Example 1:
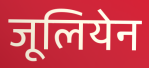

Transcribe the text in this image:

जूलियेन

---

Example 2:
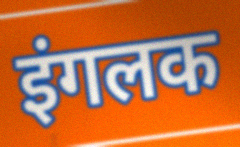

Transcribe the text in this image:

इंगलक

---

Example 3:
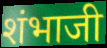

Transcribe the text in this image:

शंभाजी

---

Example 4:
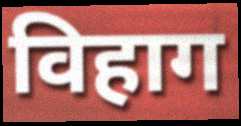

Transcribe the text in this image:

विहाग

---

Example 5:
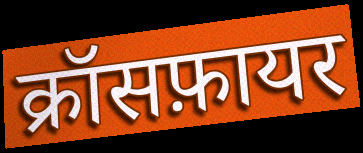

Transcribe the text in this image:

क्रॉसफ़ायर